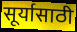
सूर्यासाठी